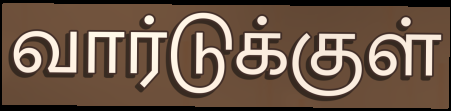
வார்டுக்குள்